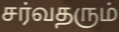
சர்வதரும்